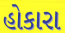
હોકારા